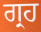
ਗ੍ਰਹ